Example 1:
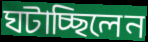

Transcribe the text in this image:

ঘটাচ্ছিলেন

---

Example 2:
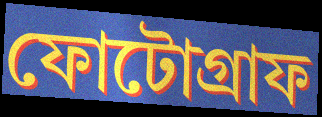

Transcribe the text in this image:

ফোটোগ্রাফ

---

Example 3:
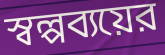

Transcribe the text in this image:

স্বল্পব্যয়ের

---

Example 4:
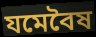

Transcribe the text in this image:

যমেবৈষ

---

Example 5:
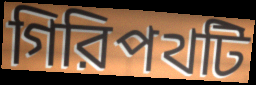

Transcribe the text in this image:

গিরিপথটি